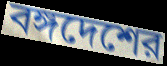
বঙ্গদেশের